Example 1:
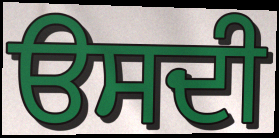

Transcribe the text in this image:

ੳਸਦੀ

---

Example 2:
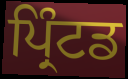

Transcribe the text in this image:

ਪ੍ਰਿੰਟਡ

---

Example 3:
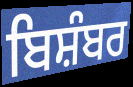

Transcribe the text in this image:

ਬਿਸ਼ੰਬਰ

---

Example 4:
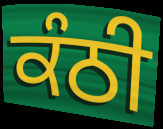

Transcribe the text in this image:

ਕੰਠੀ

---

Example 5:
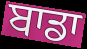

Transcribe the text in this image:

ਬਾਡਾ